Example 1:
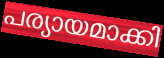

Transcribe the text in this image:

പര്യായമാക്കി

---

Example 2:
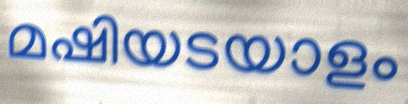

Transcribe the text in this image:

മഷിയടയാളം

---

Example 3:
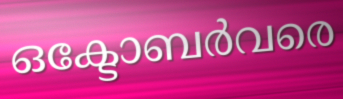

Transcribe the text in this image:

ഒക്ടോബർവരെ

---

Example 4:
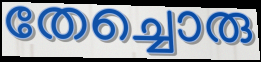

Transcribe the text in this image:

തേച്ചൊരു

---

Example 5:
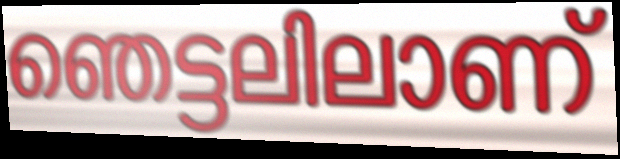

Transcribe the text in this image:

ഞെട്ടലിലാണ്